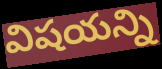
విషయన్ని